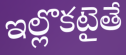
ఇల్లొకటైతే